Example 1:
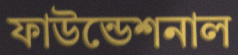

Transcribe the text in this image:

ফাউন্ডেশনাল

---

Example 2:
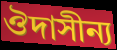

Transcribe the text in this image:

ঔদাসীন্য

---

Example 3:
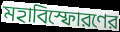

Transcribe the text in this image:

মহাবিস্ফোরণের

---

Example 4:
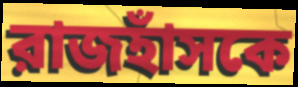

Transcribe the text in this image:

রাজহাঁসকে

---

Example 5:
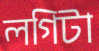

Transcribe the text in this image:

লগিটা